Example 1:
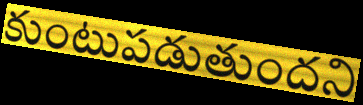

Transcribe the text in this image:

కుంటుపడుతుందని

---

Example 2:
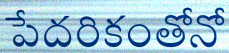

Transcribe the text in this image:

పేదరికంతోనో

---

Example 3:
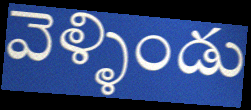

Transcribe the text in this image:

వెళ్ళిండు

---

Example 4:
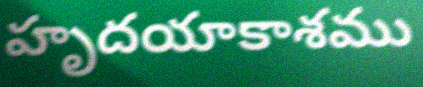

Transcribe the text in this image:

హృదయాకాశము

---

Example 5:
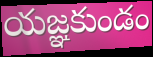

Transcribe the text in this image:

యజ్ఞకుండం